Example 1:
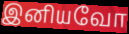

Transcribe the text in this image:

இனியவோ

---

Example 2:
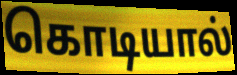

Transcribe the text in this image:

கொடியால்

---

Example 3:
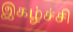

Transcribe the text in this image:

இகழ்ச்சி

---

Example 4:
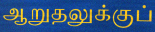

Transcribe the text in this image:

ஆறுதலுக்குப்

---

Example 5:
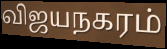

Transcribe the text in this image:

விஜயநகரம்